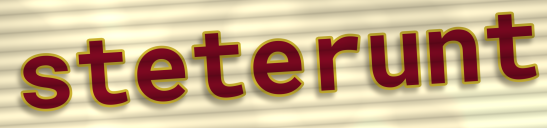
steterunt